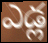
ఎడ్ల